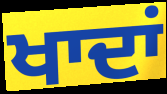
ਖਾਦਾਂ